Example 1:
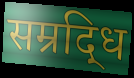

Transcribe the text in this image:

सम्रद्धि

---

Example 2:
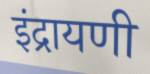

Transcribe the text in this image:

इंद्रायणी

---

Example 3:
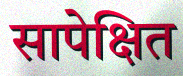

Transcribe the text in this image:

सापेक्षित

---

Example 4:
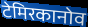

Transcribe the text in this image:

टेमिरकानोव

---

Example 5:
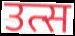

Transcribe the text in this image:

उत्स